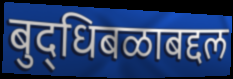
बुद्धिबळाबद्दल